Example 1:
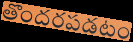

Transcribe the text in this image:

తొందరపడటం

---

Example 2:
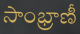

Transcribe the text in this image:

సాంభ్రాణీ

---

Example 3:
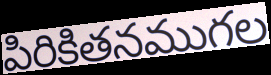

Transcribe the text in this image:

పిరికితనముగల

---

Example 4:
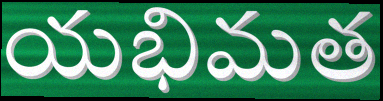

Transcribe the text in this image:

యభిమత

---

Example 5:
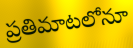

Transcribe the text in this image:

ప్రతిమాటలోనూ